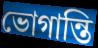
ভোগান্তি